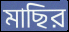
মাছির